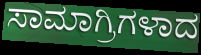
ಸಾಮಾಗ್ರಿಗಳಾದ